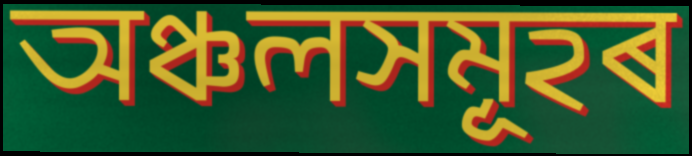
অঞ্চলসমূহৰ